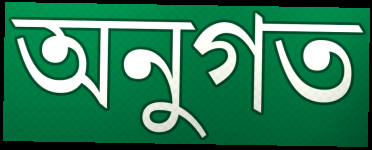
অনুগত